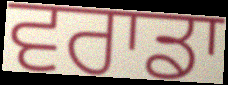
ਵਰਾਡਾ